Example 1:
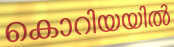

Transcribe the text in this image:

കൊറിയയിൽ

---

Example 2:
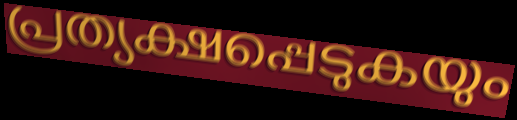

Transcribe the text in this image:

പ്രത്യക്ഷപ്പെടുകയും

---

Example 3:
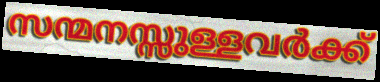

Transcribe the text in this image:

സന്മനസ്സുള്ളവർക്ക്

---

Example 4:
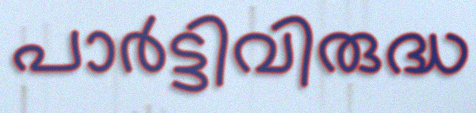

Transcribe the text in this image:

പാർട്ടിവിരുദ്ധ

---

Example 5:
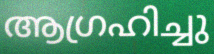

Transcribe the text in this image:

ആഗ്രഹിച്ചു